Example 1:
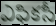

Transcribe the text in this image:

ఎఫికసీ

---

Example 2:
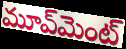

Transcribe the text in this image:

మూవ్‌మెంట్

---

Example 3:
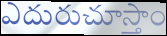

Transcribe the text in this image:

ఎదురుచూస్తాం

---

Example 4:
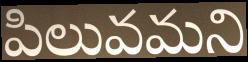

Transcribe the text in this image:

పిలువమని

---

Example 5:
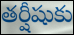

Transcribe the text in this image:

తర్షీషుకు